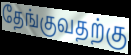
தேங்குவதற்கு